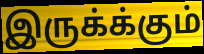
இருக்க்கும்